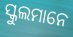
ସ୍କୁଲମାନେ